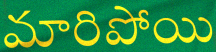
మారిపోయి